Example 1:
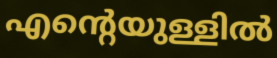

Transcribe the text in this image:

എന്റെയുള്ളിൽ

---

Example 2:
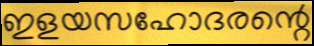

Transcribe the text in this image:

ഇളയസഹോദരന്റെ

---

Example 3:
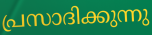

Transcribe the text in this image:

പ്രസാദിക്കുന്നു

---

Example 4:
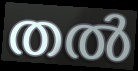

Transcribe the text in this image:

തൽ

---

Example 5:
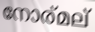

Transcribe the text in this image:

നോര്മല്